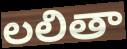
లలితా